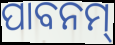
ପାବନମ୍